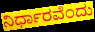
ನಿರ್ಧಾರವೆಂದು